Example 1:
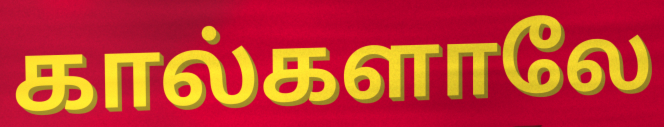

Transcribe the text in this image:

கால்களாலே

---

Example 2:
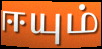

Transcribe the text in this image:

ஈயும்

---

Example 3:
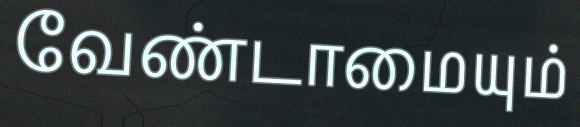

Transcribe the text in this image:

வேண்டாமையும்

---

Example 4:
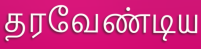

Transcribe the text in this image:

தரவேண்டிய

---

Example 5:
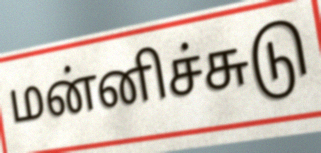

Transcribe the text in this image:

மன்னிச்சுடு